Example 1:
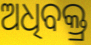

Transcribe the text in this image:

ଅଧିବକ୍ତ୍ର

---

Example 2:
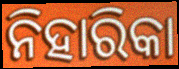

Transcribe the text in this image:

ନିହାରିକା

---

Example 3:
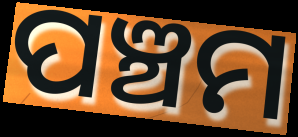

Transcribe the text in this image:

ପଞ୍ଚମ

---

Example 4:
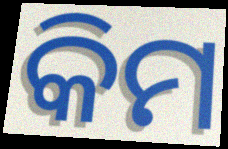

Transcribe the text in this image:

କିମ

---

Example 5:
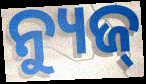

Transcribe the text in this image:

ନ୍ୟୁଜ୍